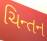
ચિન્તન